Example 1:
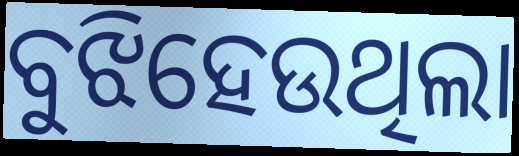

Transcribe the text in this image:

ବୁଝିହେଉଥିଲା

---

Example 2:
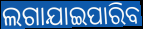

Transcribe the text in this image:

ଲଗାଯାଇପାରିବ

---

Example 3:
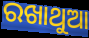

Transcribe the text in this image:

ରଖାଥୁଆ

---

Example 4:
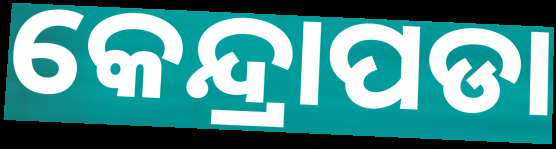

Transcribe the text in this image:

କେନ୍ଦ୍ରାପଡା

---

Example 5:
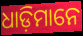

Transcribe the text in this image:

ଧାଡ଼ିମାନେ